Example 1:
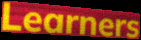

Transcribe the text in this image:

Learners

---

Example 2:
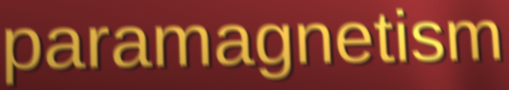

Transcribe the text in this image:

paramagnetism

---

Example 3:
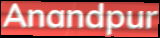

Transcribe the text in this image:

Anandpur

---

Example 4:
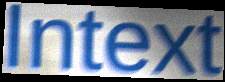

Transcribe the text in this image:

Intext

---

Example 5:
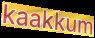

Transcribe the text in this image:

kaakkum